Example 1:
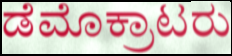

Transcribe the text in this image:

ಡೆಮೊಕ್ರಾಟರು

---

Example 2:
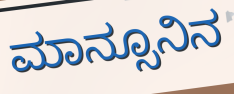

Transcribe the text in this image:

ಮಾನ್ಸೂನಿನ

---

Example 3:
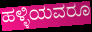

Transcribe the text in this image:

ಹಳ್ಳಿಯವರೂ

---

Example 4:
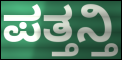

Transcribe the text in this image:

ಪತ್ತನ್ತಿ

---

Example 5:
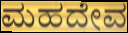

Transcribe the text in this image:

ಮಹದೇವ